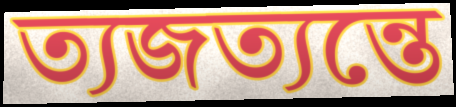
ত্যজত্যন্তে